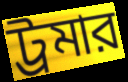
ট্রমার